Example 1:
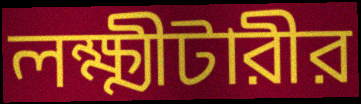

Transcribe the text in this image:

লক্ষ্মীটারীর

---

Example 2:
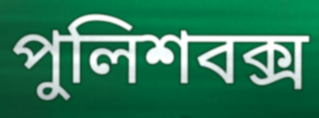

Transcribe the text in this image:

পুলিশবক্স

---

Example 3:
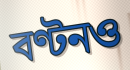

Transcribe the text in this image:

বণ্টনও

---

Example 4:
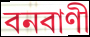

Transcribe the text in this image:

বনবাণী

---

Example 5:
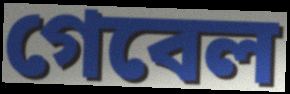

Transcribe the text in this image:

গেবেল